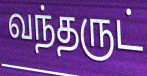
வந்தருட்